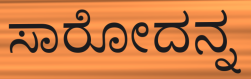
ಸಾರೋದನ್ನ